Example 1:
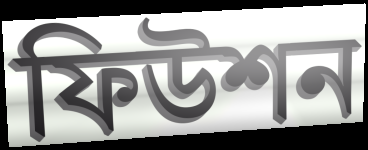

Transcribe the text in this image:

ফিউশন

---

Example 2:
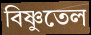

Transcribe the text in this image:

বিষ্ণুতেল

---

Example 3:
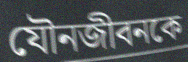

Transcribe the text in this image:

যৌনজীবনকে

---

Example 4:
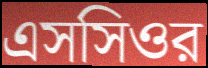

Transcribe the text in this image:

এসসিওর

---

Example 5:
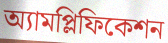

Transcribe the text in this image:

অ্যামপ্লিফিকেশন